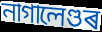
নাগালেণ্ডৰ